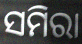
ସମିରା